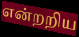
என்றறிய